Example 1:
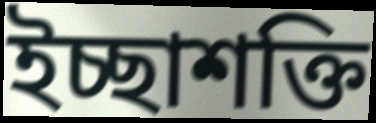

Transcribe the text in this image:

ইচ্ছাশক্তি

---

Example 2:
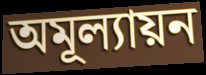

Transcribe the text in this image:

অমূল্যায়ন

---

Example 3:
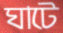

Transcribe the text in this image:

ঘাটে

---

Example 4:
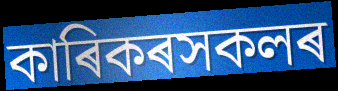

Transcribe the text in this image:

কাৰিকৰসকলৰ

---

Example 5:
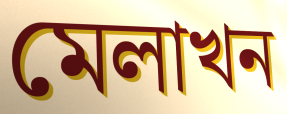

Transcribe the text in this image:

মেলাখন